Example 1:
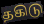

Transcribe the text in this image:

தகிடு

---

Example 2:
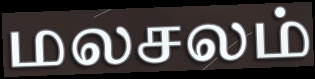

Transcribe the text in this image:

மலசலம்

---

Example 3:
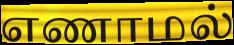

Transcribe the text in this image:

எணாமல்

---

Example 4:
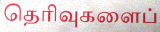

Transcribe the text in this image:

தெரிவுகளைப்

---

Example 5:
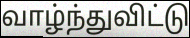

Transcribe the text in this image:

வாழ்ந்துவிட்டு